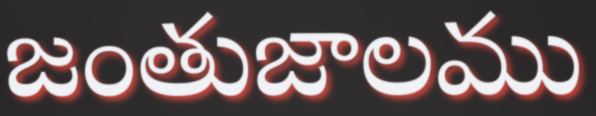
జంతుజాలము